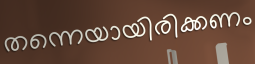
തന്നെയായിരിക്കണം